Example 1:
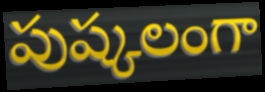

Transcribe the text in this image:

పుష్కలంగా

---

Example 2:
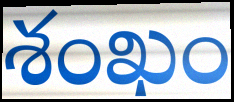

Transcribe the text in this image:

శంఖం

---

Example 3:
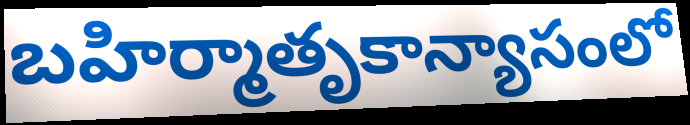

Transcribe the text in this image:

బహిర్మాతృకాన్యాసంలో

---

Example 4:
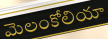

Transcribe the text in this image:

మెలంకోలియా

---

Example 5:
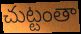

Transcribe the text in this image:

చుట్టంతా